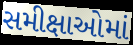
સમીક્ષાઓમાં